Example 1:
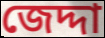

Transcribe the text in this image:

জেদ্দা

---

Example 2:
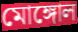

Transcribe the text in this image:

মোঙ্গোল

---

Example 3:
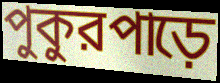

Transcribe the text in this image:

পুকুরপাড়ে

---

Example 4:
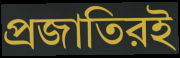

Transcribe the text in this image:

প্রজাতিরই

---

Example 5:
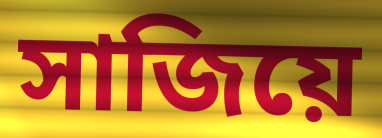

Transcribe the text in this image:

সাজিয়ে